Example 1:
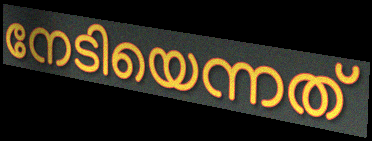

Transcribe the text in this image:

നേടിയെന്നത്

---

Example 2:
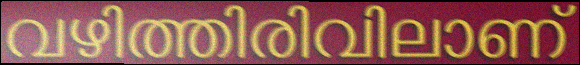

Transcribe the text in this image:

വഴിത്തിരിവിലാണ്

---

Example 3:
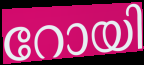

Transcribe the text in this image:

റോയി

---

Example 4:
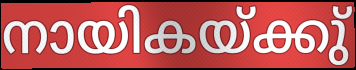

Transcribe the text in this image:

നായികയ്ക്കു്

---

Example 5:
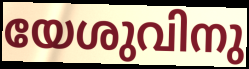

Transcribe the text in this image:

യേശുവിനു